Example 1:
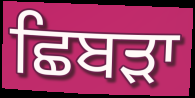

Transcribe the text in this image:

ਛਿਬੜਾ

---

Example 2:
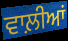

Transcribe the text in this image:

ਵਾਲ਼ੀਆਂ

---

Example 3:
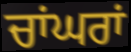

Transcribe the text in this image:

ਚਾਂਘਰਾਂ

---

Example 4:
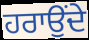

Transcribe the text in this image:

ਹਰਾਉਂਦੇ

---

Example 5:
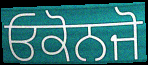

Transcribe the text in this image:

ਓਕੋਨਜੋ